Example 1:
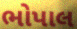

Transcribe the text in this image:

ભોપાલ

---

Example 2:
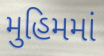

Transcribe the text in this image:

મુહિમમાં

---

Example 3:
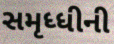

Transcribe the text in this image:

સમૃધ્ધીની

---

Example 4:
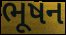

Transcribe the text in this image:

ભૂષન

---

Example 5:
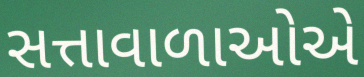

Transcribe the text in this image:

સત્તાવાળાઓએ